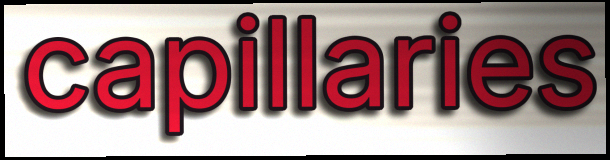
capillaries